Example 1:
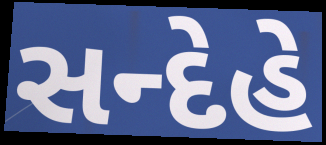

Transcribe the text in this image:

સન્દેહે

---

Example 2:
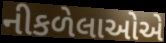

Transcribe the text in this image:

નીકળેલાઓએ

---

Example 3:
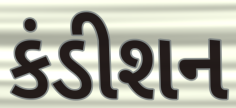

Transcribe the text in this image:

કંડીશન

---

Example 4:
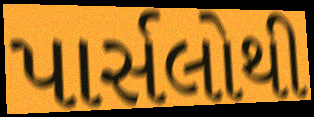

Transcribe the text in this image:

પાર્સલોથી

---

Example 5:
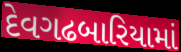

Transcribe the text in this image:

દેવગઢબારિયામાં